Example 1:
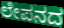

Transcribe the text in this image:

ಲೇಪನದ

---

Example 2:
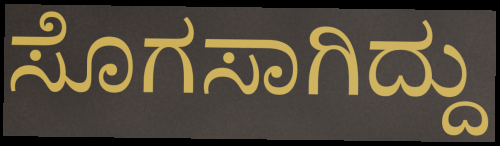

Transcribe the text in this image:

ಸೊಗಸಾಗಿದ್ದು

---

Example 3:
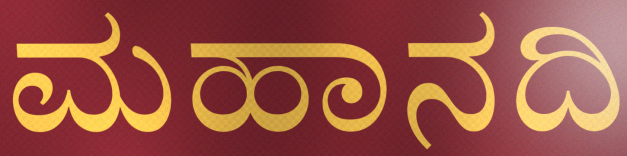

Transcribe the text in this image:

ಮಹಾನದಿ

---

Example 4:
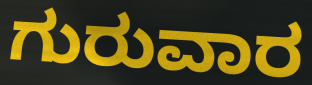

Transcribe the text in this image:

ಗುರುವಾರ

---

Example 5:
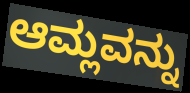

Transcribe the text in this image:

ಆಮ್ಲವನ್ನು